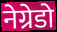
नेग्रेडो